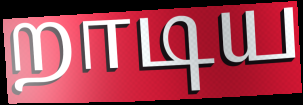
றாடிய